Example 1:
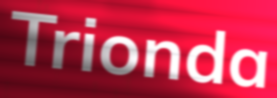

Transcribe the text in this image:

Trionda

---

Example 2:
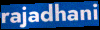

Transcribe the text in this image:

rajadhani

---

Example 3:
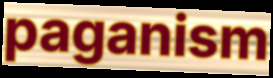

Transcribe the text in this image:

paganism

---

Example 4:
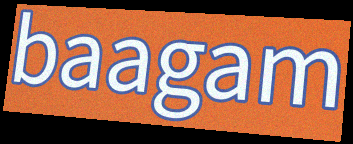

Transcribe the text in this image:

baagam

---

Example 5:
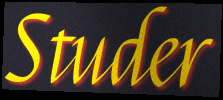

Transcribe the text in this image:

Studer